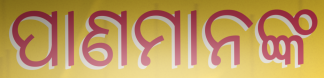
ପାଣମାନଙ୍କ